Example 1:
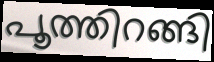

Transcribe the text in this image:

പൂത്തിറങ്ങി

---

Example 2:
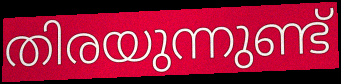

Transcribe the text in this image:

തിരയുന്നുണ്ട്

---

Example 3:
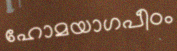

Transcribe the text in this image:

ഹോമയാഗപീഠം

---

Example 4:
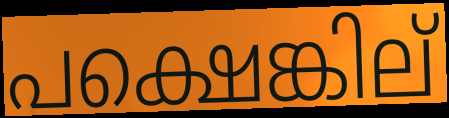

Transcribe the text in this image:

പക്ഷെങ്കില്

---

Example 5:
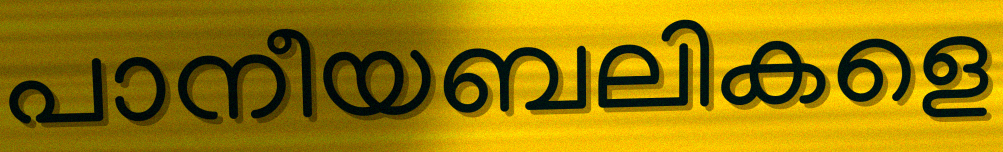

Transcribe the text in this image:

പാനീയബലികളെ